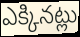
ఎక్కినట్లు